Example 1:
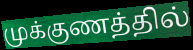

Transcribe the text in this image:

முக்குணத்தில்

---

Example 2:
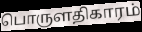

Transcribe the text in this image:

பொருளதிகாரம்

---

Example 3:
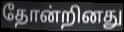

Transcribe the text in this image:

தோன்றினது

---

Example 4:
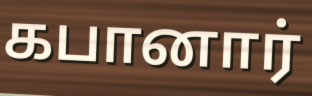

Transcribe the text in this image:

கபானார்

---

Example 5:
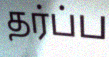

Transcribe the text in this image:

தர்ப்ப